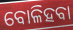
ବୋଳିହବା